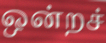
ஒன்றச்